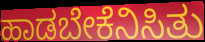
ಹಾಡಬೇಕೆನಿಸಿತು